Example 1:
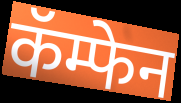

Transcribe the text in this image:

कॅम्फेन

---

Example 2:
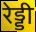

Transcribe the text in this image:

रेड्डी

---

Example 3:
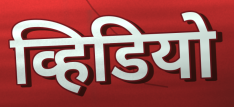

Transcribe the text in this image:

व्हिडियो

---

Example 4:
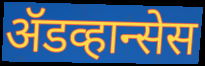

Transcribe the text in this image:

ॲडव्हान्सेस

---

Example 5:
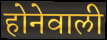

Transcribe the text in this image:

होनेवाली